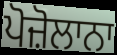
ਪੋਜ਼ੋਲਾਨਾ